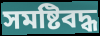
সমষ্টিবদ্ধ